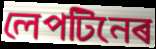
লেপটিনেৰ